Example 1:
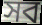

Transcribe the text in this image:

সব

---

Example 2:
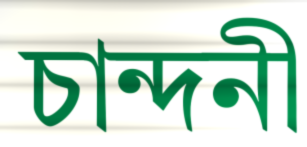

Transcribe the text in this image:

চান্দনী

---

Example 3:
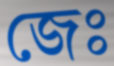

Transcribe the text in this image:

জেঃ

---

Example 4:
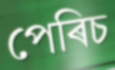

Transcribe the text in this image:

পেৰিচ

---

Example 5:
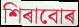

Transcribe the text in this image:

শিৰাবোৰ